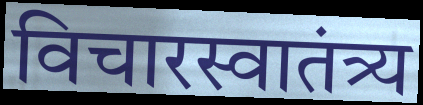
विचारस्वातंत्र्य